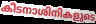
കീടനാശിനികളുടെ